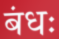
बंधः